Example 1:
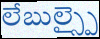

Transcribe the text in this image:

లేబుల్స్పై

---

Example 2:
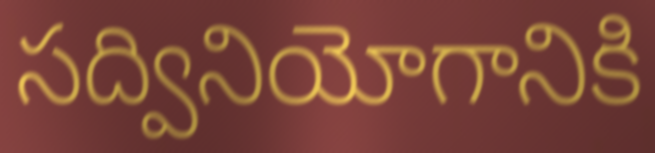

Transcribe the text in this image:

సద్వినియోగానికి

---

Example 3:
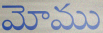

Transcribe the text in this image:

మోము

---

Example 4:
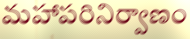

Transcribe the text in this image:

మహాపరినిర్వాణం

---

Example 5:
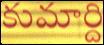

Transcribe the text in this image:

కుమార్ది